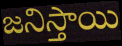
జనిస్తాయి